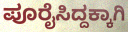
ಪೂರೈಸಿದ್ದಕ್ಕಾಗಿ